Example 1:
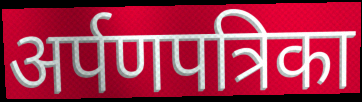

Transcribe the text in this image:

अर्पणपत्रिका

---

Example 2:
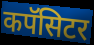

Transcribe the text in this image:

कपॅसिटर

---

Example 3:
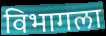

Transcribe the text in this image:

विभागला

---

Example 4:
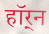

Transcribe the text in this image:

हॉर्न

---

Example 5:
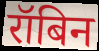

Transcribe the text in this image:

रॉबिन